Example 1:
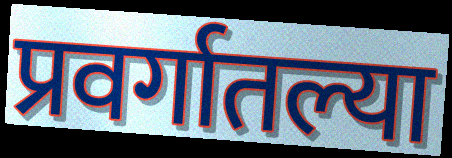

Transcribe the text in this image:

प्रवर्गातल्या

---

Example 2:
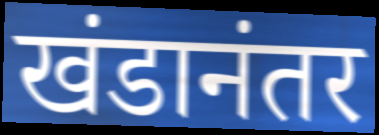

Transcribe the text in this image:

खंडानंतर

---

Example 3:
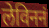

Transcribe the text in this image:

लेविननं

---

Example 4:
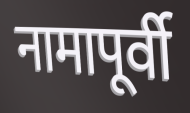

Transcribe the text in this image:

नामापूर्वी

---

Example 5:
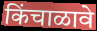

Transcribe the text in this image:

किंचाळावे